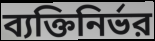
ব্যক্তিনির্ভর